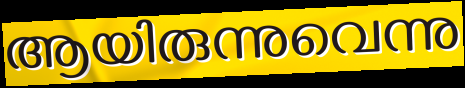
ആയിരുന്നുവെന്നു